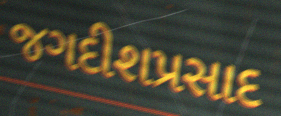
જગદીશપ્રસાદ